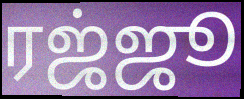
ரஜ்ஜூ